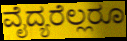
ವೈದ್ಯರೆಲ್ಲರೂ